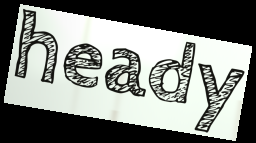
heady